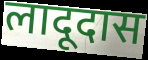
लादूदास